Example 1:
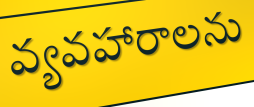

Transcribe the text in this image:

వ్యవహారాలను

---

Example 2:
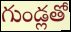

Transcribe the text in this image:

గుండ్లతో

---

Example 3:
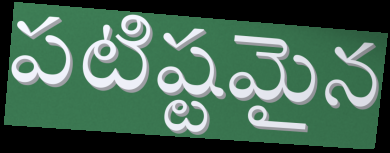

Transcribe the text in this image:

పటిష్టమైన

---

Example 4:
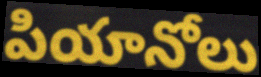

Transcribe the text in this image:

పియానోలు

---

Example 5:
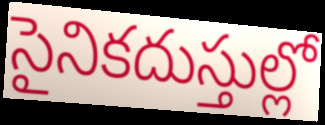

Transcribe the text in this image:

సైనికదుస్తుల్లో